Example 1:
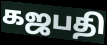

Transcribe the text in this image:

கஜபதி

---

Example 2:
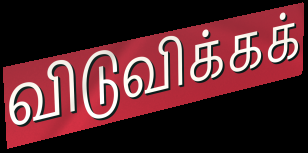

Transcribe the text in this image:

விடுவிக்கக்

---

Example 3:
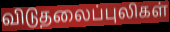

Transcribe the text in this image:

விடுதலைப்புலிகள்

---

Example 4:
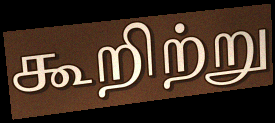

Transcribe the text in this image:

கூறிற்று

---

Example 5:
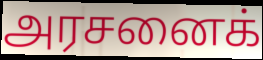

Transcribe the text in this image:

அரசனைக்